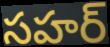
సహర్